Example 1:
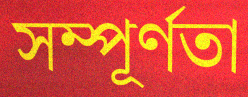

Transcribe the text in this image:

সম্পূর্ণতা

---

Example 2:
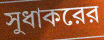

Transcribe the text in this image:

সুধাকরের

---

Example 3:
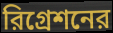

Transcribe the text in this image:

রিগ্রেশনের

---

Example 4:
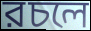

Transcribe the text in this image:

রচলে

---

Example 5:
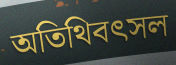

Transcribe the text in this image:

অতিথিবৎসল